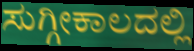
ಸುಗ್ಗೀಕಾಲದಲ್ಲಿ